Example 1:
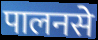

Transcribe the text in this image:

पालनसे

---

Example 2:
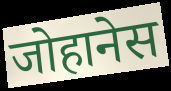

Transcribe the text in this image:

जोहानेस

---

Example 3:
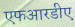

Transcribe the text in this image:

एफआरडीए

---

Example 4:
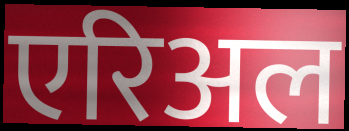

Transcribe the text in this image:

एरिअल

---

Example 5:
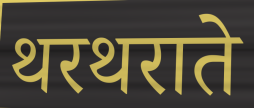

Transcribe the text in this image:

थरथराते